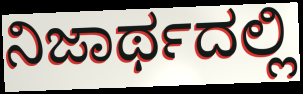
ನಿಜಾರ್ಥದಲ್ಲಿ